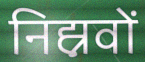
निह्नवों